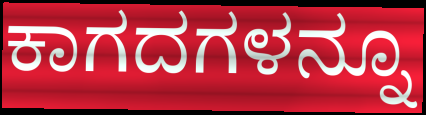
ಕಾಗದಗಳನ್ನೂ